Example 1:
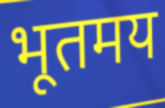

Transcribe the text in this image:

भूतमय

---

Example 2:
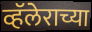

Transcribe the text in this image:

व्हॅलेराच्या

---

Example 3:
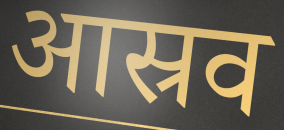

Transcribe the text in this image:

आस्रव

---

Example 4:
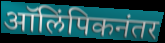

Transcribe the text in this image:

ऑलिंपिकनंतर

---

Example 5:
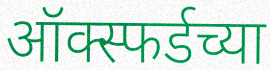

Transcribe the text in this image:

ऑक्स्फर्डच्या